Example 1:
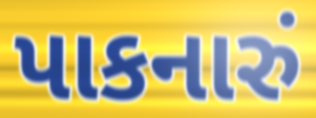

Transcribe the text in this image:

પાકનારું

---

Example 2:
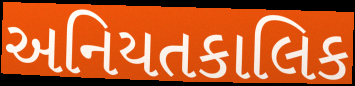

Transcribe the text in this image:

અનિયતકાલિક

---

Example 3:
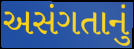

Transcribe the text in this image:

અસંગતાનું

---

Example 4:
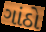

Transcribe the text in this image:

ગાંઠો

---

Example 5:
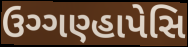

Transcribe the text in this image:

ઉગ્ગણ્હાપેસિ